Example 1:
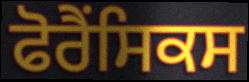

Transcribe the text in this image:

ਫੋਰੈਂਸਿਕਸ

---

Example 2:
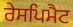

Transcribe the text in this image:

ਰੇਸਪਿਮੈਟ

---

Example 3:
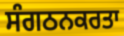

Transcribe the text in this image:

ਸੰਗਠਨਕਰਤਾ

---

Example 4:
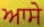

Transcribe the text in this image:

ਆਸੇ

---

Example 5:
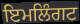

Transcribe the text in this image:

ਇਮਲਿੰਗਟ